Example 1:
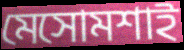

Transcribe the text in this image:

মেসোমশাই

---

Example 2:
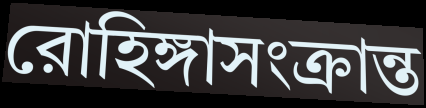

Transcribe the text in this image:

রোহিঙ্গাসংক্রান্ত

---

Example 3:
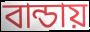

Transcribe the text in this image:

বান্ডায়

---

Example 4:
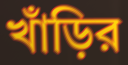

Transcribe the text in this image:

খাঁড়ির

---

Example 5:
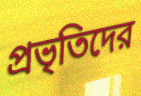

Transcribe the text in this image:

প্রভৃতিদের